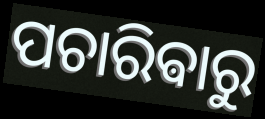
ପଚାରିଵାରୁ